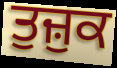
ਤੁਜ਼ੁਕ